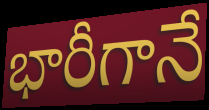
భారీగానే